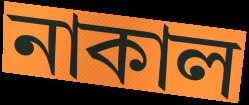
নাকাল